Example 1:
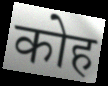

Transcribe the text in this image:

कोह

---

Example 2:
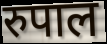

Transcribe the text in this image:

रुपाल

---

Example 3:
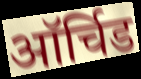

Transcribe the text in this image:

ऑर्चिड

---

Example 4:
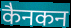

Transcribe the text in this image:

कैनकन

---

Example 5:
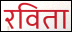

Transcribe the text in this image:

रविता